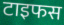
टाइफस